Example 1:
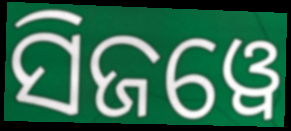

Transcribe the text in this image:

ସିଜୱେ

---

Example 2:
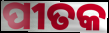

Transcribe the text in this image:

ପୀତକ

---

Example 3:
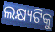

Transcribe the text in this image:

ଲକ୍ଷ୍ୟଟିକୁ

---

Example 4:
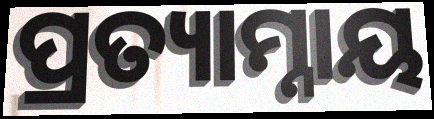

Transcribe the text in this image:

ପ୍ରତ୍ୟାମ୍ନାୟ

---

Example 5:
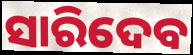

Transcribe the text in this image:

ସାରିଦେବ